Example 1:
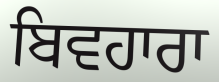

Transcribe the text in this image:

ਬਿਵਹਾਰਾ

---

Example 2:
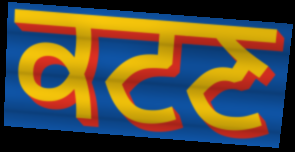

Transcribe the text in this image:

ਕਟਣ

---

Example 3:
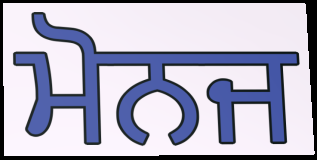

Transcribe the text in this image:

ਮੋਨਜ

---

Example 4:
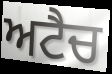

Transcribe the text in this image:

ਅਟੈਚ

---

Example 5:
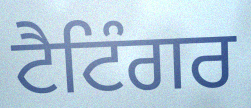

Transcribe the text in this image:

ਟੈਟਿੰਗਰ